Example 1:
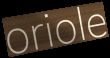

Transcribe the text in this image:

oriole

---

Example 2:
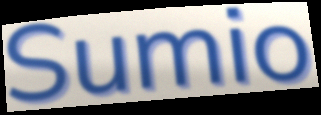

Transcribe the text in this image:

Sumio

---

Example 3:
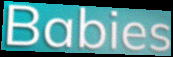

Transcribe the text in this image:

Babies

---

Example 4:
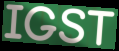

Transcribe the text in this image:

IGST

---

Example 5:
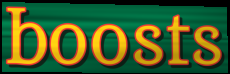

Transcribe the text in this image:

boosts